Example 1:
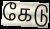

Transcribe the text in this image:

கேடு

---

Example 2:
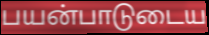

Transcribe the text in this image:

பயன்பாடுடைய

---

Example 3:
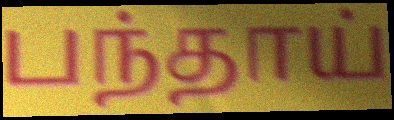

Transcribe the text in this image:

பந்தாய்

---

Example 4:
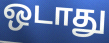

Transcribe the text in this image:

ஒடாது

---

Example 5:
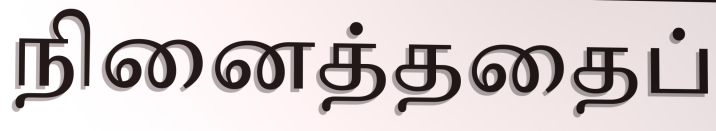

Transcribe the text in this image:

நினைத்ததைப்